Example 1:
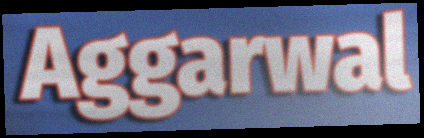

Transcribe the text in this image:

Aggarwal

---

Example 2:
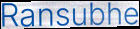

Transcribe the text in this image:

Ransubhe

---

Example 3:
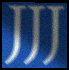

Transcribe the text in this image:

JJJ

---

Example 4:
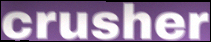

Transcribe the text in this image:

crusher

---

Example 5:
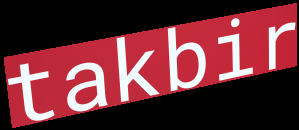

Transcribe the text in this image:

takbir